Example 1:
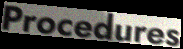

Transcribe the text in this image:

Procedures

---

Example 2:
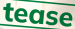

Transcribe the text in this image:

tease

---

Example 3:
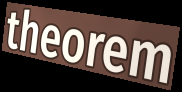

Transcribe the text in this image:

theorem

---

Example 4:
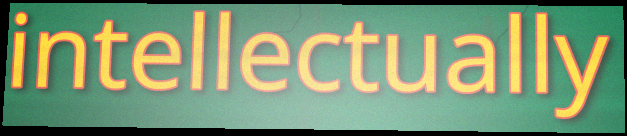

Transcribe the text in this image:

intellectually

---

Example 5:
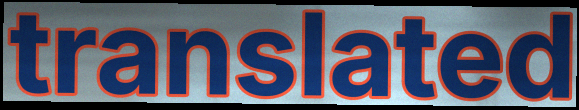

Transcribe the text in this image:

translated